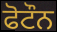
ਫੋਟੌਨ